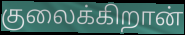
குலைக்கிறான்